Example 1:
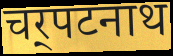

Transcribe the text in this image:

चर्पटनाथ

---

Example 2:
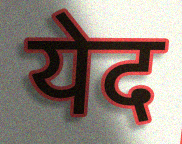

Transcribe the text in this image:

येद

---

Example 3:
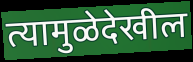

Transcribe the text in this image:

त्यामुळेदेखील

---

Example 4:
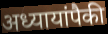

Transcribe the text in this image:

अध्यायांपैकी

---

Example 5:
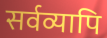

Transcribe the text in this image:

सर्वव्यापि